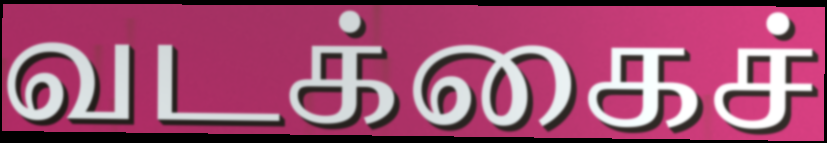
வடக்கைச்